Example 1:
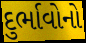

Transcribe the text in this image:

દુર્ભાવોનો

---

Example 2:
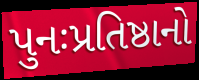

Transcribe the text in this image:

પુનઃપ્રતિષ્ઠાનો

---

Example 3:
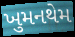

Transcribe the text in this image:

ખુમનથેમ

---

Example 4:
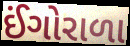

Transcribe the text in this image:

ઈંગોરાળા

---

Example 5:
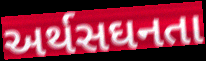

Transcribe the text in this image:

અર્થસઘનતા